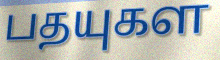
பதயுகள